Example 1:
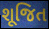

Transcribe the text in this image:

શૂજિત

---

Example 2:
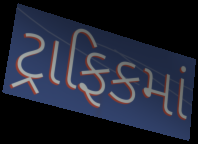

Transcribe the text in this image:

ટ્રાફિકમાં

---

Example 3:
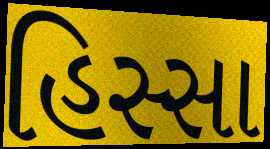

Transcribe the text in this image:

હિસ્સા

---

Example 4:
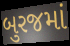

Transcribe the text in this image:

બુરજમાં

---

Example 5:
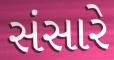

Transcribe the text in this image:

સંસારે